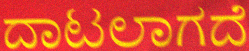
ದಾಟಲಾಗದೆ